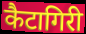
कैटागिरी